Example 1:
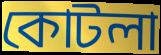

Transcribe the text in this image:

কোটলা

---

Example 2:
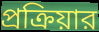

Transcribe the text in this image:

প্রক্রিয়ার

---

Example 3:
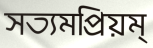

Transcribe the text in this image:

সত্যমপ্রিয়ম্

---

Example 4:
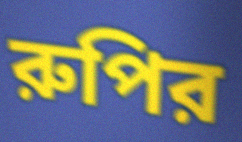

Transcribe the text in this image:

রুপির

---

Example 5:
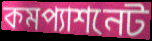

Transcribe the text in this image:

কমপ্যাশনেট